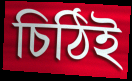
চিঠিই